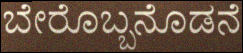
ಬೇರೊಬ್ಬನೊಡನೆ